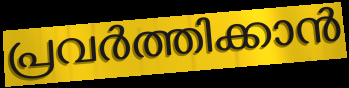
പ്രവർത്തിക്കാൻ